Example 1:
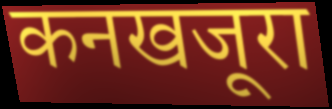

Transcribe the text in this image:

कनखजूरा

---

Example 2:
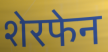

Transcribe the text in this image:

शेरफेन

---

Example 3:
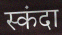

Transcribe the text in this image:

स्कंदा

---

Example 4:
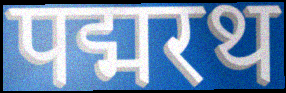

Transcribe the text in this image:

पद्मरथ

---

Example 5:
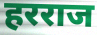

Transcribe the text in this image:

हरराज